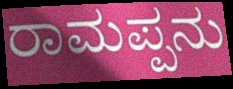
ರಾಮಪ್ಪನು